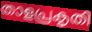
താളപ്രകൃതി